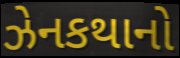
ઝેનકથાનો